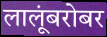
लालूंबरोबर